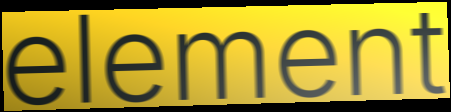
element